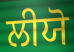
ਲੀਯੋ